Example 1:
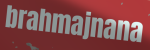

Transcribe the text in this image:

brahmajnana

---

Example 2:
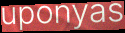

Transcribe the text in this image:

uponyas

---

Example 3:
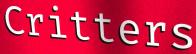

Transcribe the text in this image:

Critters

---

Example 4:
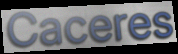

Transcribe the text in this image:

Caceres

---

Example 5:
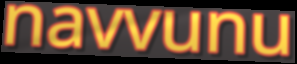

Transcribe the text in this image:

navvunu